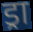
ड्रा